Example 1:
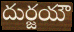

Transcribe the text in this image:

దుర్జయౌ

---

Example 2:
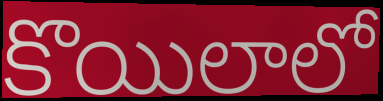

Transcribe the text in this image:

కొయిలాలో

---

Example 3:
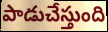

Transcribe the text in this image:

పాడుచేస్తుంది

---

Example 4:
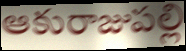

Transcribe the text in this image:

ఆకురాజుపల్లి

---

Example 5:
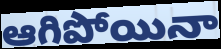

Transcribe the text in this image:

ఆగిపోయినా